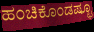
ಹಂಚಿಕೊಂಡಷ್ಟೂ